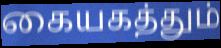
கையகத்தும்